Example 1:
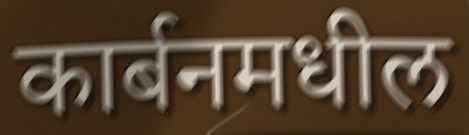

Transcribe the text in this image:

कार्बनमधील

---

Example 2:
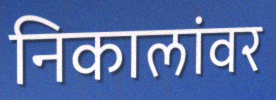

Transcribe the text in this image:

निकालांवर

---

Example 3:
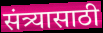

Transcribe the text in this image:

संत्र्यासाठी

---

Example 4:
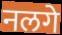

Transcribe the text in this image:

नलगे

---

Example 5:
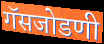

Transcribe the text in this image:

गॅसजोडणी